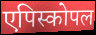
एपिस्कोपल